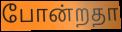
போன்றதா